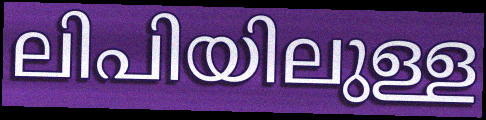
ലിപിയിലുള്ള